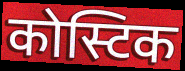
कोस्टिक